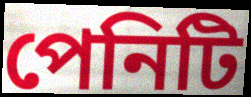
পেনিটি